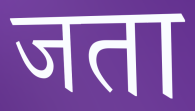
जता